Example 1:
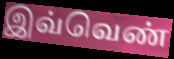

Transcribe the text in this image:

இவ்வெண்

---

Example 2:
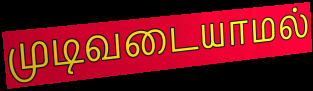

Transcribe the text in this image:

முடிவடையாமல்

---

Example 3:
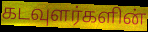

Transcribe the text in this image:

கடவுளர்களின்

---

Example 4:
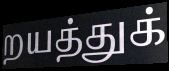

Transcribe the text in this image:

றயத்துக்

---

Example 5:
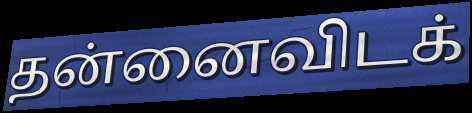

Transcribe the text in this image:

தன்னைவிடக்